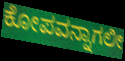
ಕೋಪವನ್ನಾಗಲೀ